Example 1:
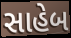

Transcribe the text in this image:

સાહેબ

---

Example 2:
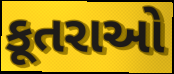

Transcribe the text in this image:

કૂતરાઓ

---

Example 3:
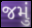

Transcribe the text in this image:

જમું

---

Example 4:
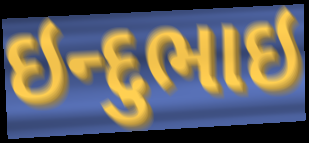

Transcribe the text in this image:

ઇન્દુભાઇ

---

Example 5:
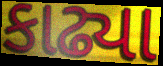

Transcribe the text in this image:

કાઢ્યા